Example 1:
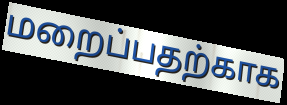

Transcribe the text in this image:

மறைப்பதற்காக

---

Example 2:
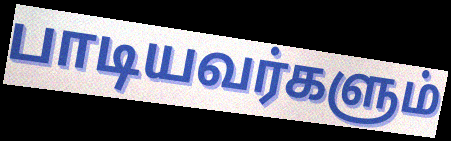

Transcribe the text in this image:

பாடியவர்களும்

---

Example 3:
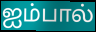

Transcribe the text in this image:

ஐம்பால்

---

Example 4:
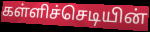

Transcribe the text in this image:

கள்ளிச்செடியின்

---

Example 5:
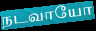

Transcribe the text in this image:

நடவாயோ